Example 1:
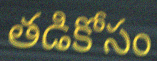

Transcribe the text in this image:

తడికోసం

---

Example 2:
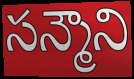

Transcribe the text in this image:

సన్మౌని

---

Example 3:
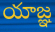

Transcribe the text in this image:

యాజ్ఞ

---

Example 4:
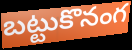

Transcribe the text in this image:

బట్టుకొనంగ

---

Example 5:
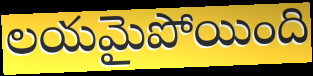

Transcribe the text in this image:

లయమైపోయింది